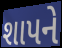
શાપને